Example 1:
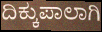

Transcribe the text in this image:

ದಿಕ್ಕುಪಾಲಾಗಿ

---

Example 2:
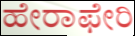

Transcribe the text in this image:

ಹೇರಾಫೇರಿ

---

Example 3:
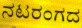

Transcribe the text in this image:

ನಟರಂಗದ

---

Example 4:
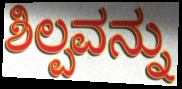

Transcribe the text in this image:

ಶಿಲ್ಪವನ್ನು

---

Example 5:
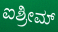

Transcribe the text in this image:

ಐಶ್ರೀಮ್